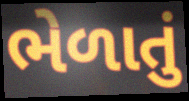
ભેળાતું